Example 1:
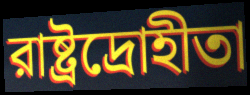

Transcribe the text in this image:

রাষ্ট্রদ্রোহীতা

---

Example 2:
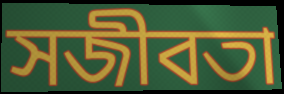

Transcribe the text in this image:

সজীবতা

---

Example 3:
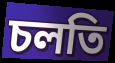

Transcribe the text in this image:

চলতি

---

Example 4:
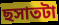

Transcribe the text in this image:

ছসাতটা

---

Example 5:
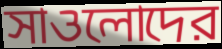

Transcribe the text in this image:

সাওলোদের